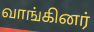
வாங்கினர்